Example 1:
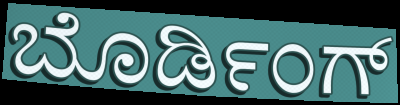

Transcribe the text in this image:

ಬೊರ್ಡಿಂಗ್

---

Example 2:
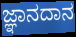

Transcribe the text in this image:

ಜ್ಞಾನದಾನ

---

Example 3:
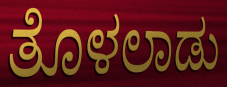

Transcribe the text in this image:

ತೊಳಲಾಡು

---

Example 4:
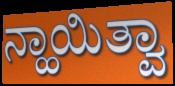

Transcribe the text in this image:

ನ್ಹಾಯಿತ್ವಾ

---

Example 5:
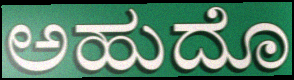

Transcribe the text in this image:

ಅಹುದೊ